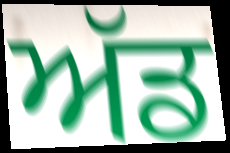
ਅੱਡ